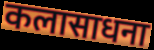
कलासाधना